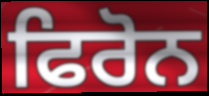
ਫਿਰੋਨ